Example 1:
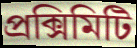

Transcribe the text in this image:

প্রক্সিমিটি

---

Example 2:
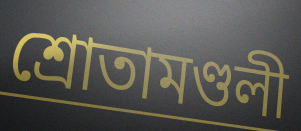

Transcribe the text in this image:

শ্রোতামণ্ডলী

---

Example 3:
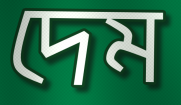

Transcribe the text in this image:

দেম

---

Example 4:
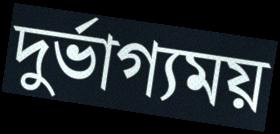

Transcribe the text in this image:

দুর্ভাগ্যময়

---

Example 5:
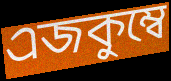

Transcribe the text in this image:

এজকুম্বে